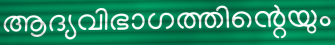
ആദ്യവിഭാഗത്തിന്റെയും